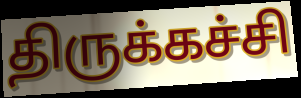
திருக்கச்சி